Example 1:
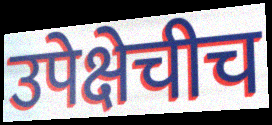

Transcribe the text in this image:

उपेक्षेचीच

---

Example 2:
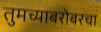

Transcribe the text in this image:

तुमच्याबरोबरचा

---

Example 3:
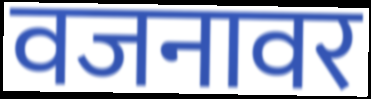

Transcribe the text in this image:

वजनावर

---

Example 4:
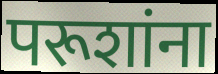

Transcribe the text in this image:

परूशांना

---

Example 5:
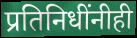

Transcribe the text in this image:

प्रतिनिधींनीही